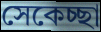
সেকেচ্ছা